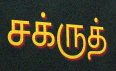
சக்ருத்